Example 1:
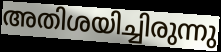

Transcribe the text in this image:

അതിശയിച്ചിരുന്നു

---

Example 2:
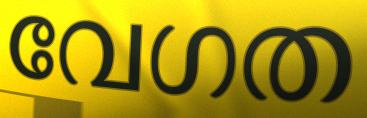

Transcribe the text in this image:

വേഗത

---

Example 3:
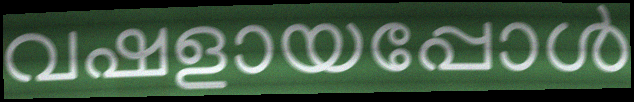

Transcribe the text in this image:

വഷളായപ്പോൾ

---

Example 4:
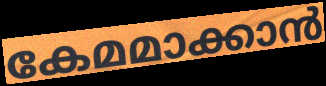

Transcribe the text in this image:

കേമമാക്കാൻ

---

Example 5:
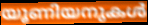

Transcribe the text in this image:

യൂണിയനുകൾ